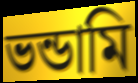
ভন্ডামি